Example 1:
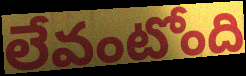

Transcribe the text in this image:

లేవంటోంది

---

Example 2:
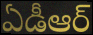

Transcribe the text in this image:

ఏడీఆర్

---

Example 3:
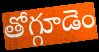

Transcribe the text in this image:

తోగ్గూడెం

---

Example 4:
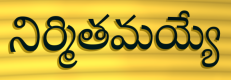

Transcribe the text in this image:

నిర్మితమయ్యే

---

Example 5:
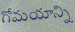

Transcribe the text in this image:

గోమయాన్ని